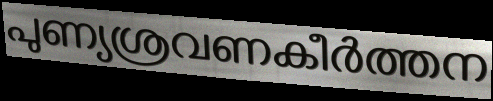
പുണ്യശ്രവണകീർത്തന